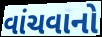
વાંચવાનો